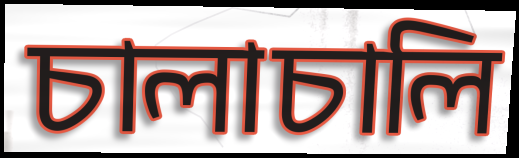
চালাচালি